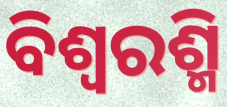
ବିଶ୍ୱରଶ୍ମି